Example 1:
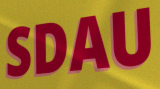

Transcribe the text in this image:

SDAU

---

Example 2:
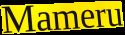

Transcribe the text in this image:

Mameru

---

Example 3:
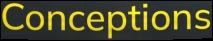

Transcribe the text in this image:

Conceptions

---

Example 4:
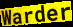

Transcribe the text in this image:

Warder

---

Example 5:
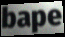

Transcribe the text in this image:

bape